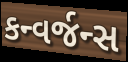
કન્વર્જન્સ